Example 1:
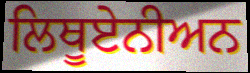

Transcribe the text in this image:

ਲਿਥੂਏਨੀਅਨ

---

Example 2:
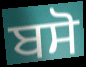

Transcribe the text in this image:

ਬਸੋ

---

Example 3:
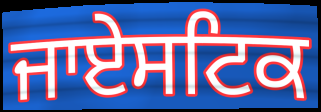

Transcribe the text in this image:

ਜਾਏਸਟਿਕ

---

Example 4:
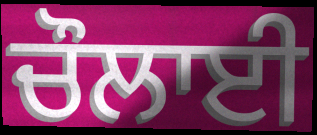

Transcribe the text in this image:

ਚੌਲਾਈ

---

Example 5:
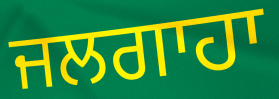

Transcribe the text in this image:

ਜਲਗਾਹਾ